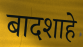
बादशाहे